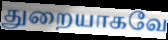
துறையாகவே